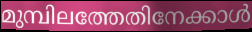
മുമ്പിലത്തേതിനേക്കാൾ